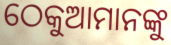
ଠେକୁଆମାନଙ୍କୁ